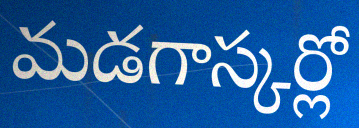
మడగాస్కర్లో